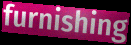
furnishing